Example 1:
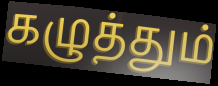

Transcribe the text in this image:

கழுத்தும்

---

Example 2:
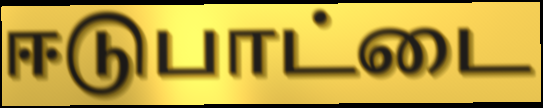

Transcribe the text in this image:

ஈடுபாட்டை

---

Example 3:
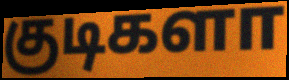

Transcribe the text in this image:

குடிகளா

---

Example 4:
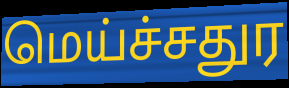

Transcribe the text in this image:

மெய்ச்சதுர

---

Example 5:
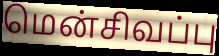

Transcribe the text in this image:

மென்சிவப்பு